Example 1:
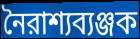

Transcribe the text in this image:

নৈরাশ্যব্যঞ্জক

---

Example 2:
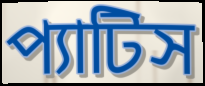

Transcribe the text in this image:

প্যাটিস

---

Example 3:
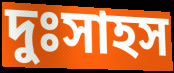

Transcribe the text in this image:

দুঃসাহস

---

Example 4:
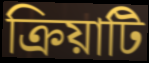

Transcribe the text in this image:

ক্রিয়াটি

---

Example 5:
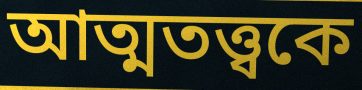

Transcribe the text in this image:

আত্মতত্ত্বকে